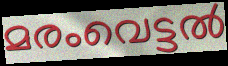
മരംവെട്ടൽ